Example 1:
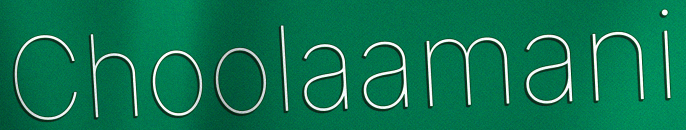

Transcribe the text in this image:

Choolaamani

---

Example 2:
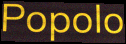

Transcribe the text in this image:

Popolo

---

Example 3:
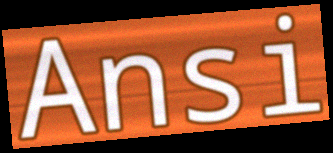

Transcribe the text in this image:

Ansi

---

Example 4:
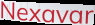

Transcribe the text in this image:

Nexavar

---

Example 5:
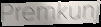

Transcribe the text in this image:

Premkunj